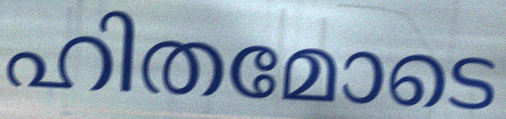
ഹിതമോടെ